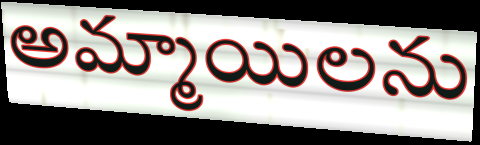
అమ్మాయిలను